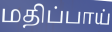
மதிப்பாய்